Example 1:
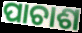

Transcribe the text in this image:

ପାଚାଶ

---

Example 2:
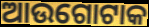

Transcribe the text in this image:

ଆଉଗୋଟାକ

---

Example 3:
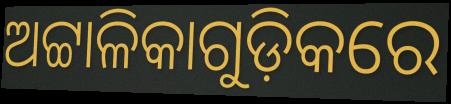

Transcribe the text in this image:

ଅଟ୍ଟାଳିକାଗୁଡ଼ିକରେ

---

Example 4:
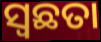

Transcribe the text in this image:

ସ୍ବଛତା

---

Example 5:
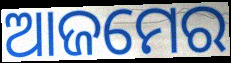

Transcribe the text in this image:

ଆଜମେର